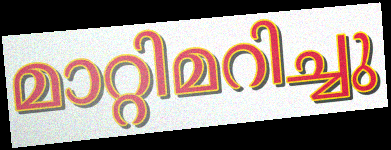
മാറ്റിമറിച്ചു